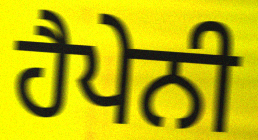
ਹੈਪੇਨੀ